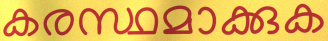
കരസ്ഥമാക്കുക